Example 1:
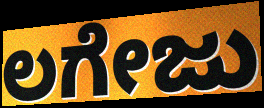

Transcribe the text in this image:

ಲಗೇಜು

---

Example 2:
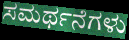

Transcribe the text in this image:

ಸಮರ್ಥನೆಗಳು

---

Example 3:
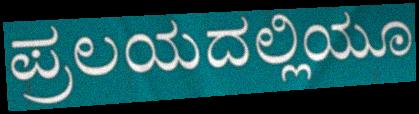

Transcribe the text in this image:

ಪ್ರಲಯದಲ್ಲಿಯೂ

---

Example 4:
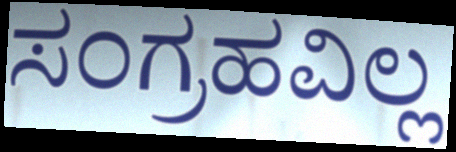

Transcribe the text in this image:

ಸಂಗ್ರಹವಿಲ್ಲ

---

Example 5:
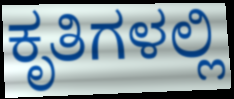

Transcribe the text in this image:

ಕೃತಿಗಳಲ್ಲಿ